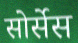
सोर्सेस